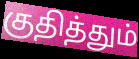
குதித்தும்